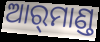
ଆର୍‌ମାଣ୍ଡ